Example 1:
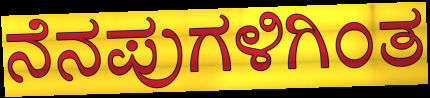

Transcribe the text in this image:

ನೆನಪುಗಳಿಗಿಂತ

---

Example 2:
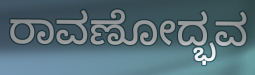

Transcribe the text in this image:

ರಾವಣೋದ್ಭವ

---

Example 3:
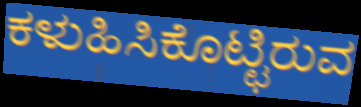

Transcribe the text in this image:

ಕಳುಹಿಸಿಕೊಟ್ಟಿರುವ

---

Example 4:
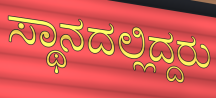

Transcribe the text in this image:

ಸ್ಥಾನದಲ್ಲಿದ್ದರು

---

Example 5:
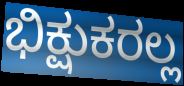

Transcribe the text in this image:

ಭಿಕ್ಷುಕರಲ್ಲ